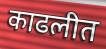
काढलीत